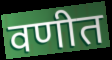
वणीत